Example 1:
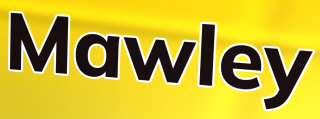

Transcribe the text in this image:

Mawley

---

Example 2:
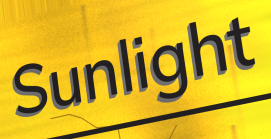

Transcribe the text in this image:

Sunlight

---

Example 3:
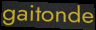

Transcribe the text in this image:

gaitonde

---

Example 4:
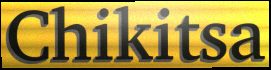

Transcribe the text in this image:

Chikitsa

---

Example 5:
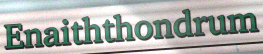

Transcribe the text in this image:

Enaiththondrum